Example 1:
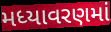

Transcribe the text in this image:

મધ્યાવરણમાં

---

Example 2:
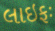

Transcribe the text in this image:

લાઇફઃ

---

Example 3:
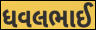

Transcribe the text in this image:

ધવલભાઈ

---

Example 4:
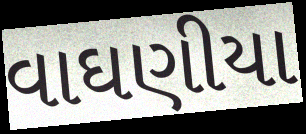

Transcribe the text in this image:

વાઘણીયા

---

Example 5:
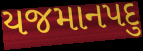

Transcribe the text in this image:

યજમાનપદુ